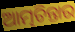
ଆତ୍ମଚିନ୍ତାର